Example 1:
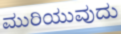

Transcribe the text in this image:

ಮುರಿಯುವುದು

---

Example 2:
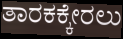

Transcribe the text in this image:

ತಾರಕಕ್ಕೇರಲು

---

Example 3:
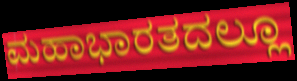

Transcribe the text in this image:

ಮಹಾಭಾರತದಲ್ಲೂ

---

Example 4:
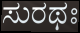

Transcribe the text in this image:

ಸುರಥಃ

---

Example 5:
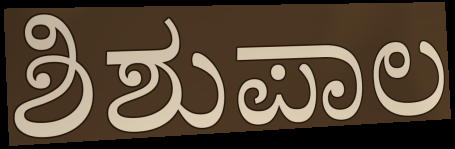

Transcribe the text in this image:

ಶಿಶುಪಾಲ